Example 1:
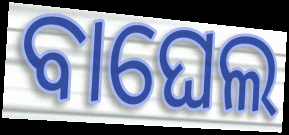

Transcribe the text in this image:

ବାଘେଲ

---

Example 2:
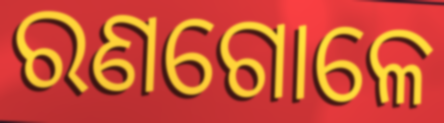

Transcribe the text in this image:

ରଣଗୋଳେ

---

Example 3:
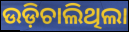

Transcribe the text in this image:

ଉଡ଼ିଚାଲିଥିଲା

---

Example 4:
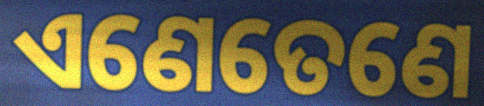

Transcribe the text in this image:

ଏଣେତେଣେ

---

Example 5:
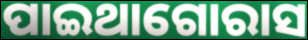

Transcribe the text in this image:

ପାଇଥାଗୋରାସ